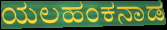
ಯಲಹಂಕನಾಡ